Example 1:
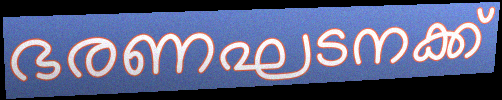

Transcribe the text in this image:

ഭരണഘടനക്ക്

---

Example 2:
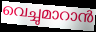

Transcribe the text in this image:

വെച്ചുമാറാൻ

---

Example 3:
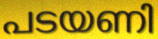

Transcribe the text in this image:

പടയണി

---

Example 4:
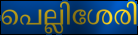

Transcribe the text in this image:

പെല്ലിശേരി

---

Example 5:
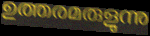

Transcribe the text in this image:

ഉത്തരമരുളുന്നു